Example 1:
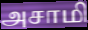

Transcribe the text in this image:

அசாமி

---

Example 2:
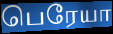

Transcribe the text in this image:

பெரேயா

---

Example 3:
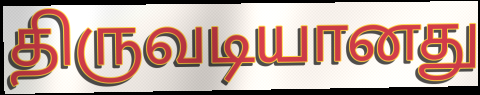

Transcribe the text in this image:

திருவடியானது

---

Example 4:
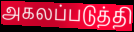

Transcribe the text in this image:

அகலப்படுத்தி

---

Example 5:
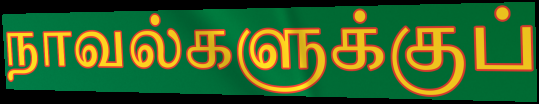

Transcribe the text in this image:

நாவல்களுக்குப்